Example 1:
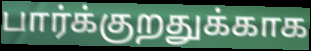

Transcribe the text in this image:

பார்க்குறதுக்காக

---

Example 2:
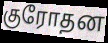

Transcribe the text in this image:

குரோதன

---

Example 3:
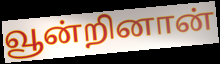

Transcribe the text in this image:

வூன்றினான்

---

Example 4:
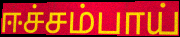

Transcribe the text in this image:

ஈச்சம்பாய்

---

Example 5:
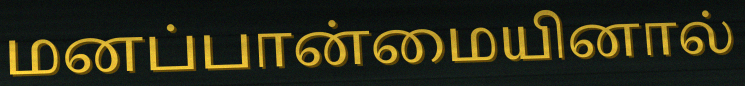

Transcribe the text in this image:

மனப்பான்மையினால்